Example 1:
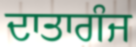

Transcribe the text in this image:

ਦਾਤਾਗੰਜ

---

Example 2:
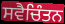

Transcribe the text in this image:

ਸਵੈਚਿੰਤਨ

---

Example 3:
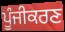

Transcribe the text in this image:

ਪੂੰਜੀਕਰਣ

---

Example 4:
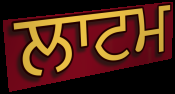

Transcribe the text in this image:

ਲਾਟਮ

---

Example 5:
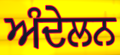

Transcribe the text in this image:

ਅੰਦੇਲਨ